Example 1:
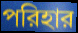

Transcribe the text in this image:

পরিহার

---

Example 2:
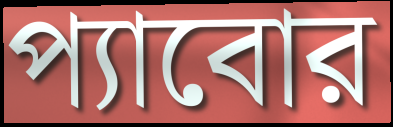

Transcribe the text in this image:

প্যাবোর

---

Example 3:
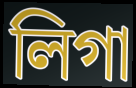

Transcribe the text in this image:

লিগা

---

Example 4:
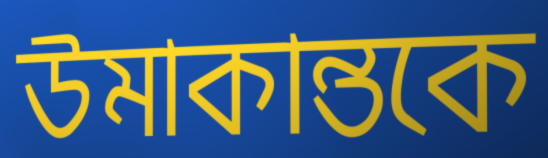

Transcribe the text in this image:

উমাকান্তকে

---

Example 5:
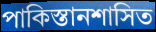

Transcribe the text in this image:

পাকিস্তানশাসিত